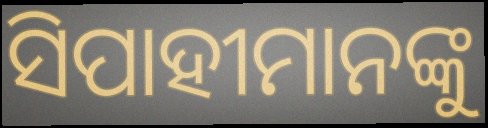
ସିପାହୀମାନଙ୍କୁ